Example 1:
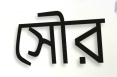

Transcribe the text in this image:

সৌর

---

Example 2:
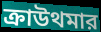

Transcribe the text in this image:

ক্রাউথমার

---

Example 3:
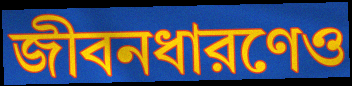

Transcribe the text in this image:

জীবনধারণেও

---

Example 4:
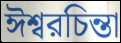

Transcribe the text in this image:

ঈশ্বরচিন্তা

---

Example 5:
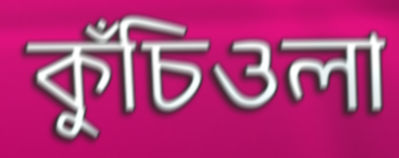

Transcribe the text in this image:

কুঁচিওলা